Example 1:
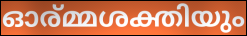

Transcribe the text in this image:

ഓര്മ്മശക്തിയും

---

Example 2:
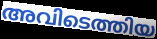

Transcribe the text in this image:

അവിടെത്തിയ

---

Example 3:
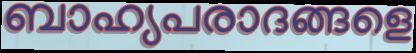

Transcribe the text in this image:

ബാഹ്യപരാദങ്ങളെ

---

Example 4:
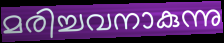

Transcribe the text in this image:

മരിച്ചവനാകുന്നു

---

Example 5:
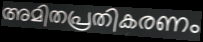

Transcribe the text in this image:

അമിതപ്രതികരണം